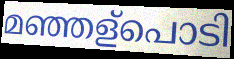
മഞ്ഞള്പൊടി